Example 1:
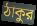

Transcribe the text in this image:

ঠাকুর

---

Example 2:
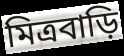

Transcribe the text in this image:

মিত্রবাড়ি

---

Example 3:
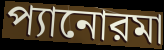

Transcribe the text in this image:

প্যানোরমা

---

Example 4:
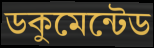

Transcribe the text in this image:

ডকুমেন্টেড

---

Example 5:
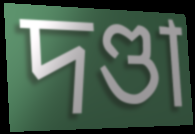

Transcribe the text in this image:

দণ্ডা